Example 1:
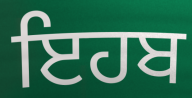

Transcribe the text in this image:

ਇਹਬ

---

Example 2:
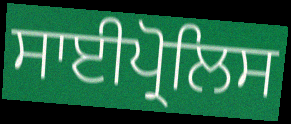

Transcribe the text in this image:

ਸਾਈਪ੍ਰੋਲਿਸ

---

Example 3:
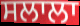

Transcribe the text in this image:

ਸਲਾਲਾ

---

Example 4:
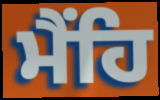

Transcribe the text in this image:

ਮੈਂਹਿ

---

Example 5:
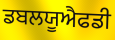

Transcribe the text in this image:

ਡਬਲਯੂਐਫਡੀ